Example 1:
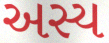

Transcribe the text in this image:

અસ્ય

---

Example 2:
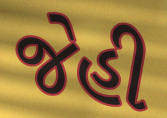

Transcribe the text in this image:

જેહી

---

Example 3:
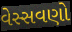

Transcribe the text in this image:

વેસ્સવણો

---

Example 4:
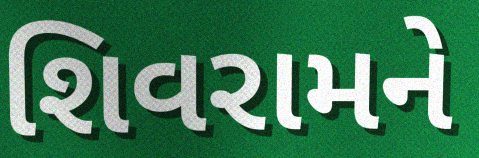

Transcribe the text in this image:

શિવરામને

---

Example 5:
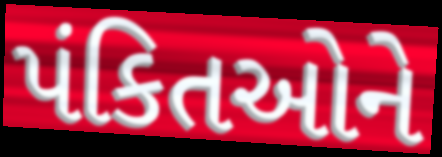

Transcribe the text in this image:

પંકિતઓને